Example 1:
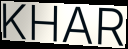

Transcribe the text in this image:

KHAR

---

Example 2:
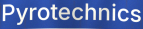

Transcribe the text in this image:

Pyrotechnics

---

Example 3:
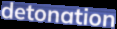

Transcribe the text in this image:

detonation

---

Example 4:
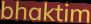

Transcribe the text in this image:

bhaktim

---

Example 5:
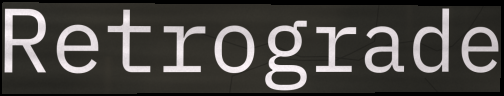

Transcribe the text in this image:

Retrograde